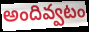
అందివ్వటం